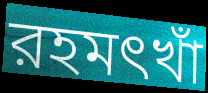
রহমৎখাঁ